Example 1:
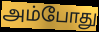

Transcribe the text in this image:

அம்போது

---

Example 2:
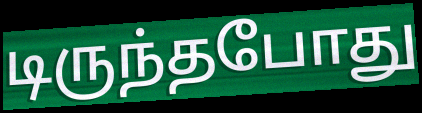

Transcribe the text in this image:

டிருந்தபோது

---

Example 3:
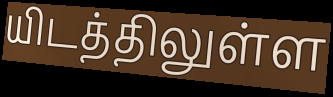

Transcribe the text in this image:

யிடத்திலுள்ள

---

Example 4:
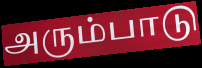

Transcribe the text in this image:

அரும்பாடு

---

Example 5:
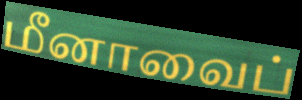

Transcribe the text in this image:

மீனாவைப்